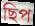
ছিপ